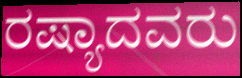
ರಷ್ಯಾದವರು